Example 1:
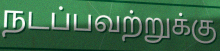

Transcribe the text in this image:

நடப்பவற்றுக்கு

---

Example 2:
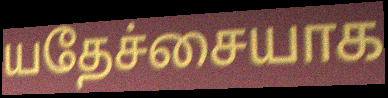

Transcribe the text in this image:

யதேச்சையாக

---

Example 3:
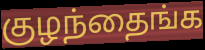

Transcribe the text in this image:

குழந்தைங்க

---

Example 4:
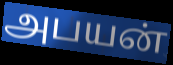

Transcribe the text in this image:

அபயன்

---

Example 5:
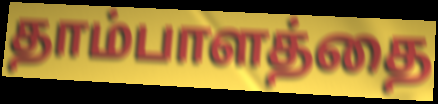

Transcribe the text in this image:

தாம்பாளத்தை